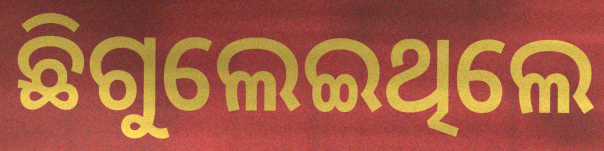
ଛିଗୁଲେଇଥିଲେ